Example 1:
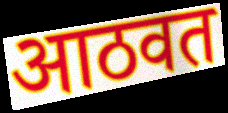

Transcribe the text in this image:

आठवत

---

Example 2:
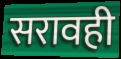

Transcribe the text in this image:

सरावही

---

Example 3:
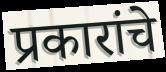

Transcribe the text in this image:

प्रकारांचे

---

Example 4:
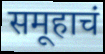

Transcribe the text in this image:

समूहाचं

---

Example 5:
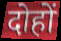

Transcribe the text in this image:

दोहों